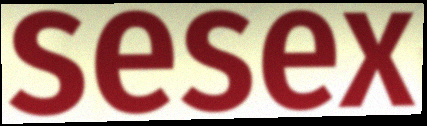
sesex